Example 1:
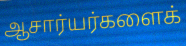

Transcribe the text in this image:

ஆசார்யர்களைக்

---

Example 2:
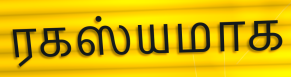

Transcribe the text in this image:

ரகஸ்யமாக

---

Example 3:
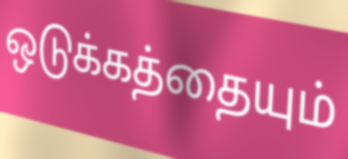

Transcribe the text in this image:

ஒடுக்கத்தையும்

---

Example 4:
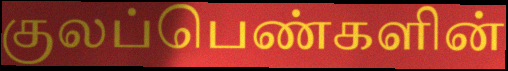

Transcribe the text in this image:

குலப்பெண்களின்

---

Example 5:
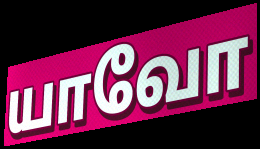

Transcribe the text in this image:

யாவோ